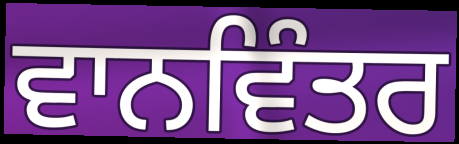
ਵਾਨਵਿੰਤਰ